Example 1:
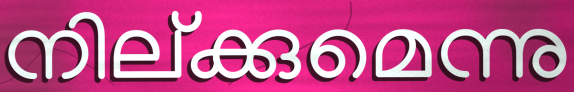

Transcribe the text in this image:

നില്ക്കുമെന്നു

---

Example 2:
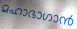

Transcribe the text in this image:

മഹാഭാഗാൻ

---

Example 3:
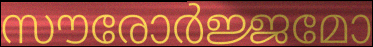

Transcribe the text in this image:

സൗരോർജ്ജമോ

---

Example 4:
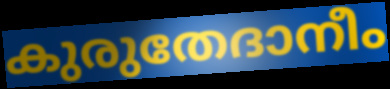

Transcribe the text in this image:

കുരുതേദാനീം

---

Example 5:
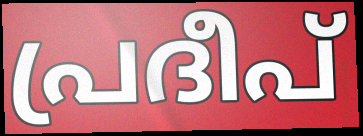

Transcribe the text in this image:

പ്രദീപ്